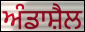
ਅੰਡਾਸ਼ੈਲ